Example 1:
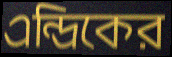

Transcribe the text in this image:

এন্দ্রিকের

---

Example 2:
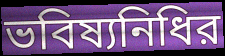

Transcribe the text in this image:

ভবিষ্যনিধির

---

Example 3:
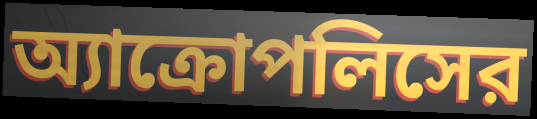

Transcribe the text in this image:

অ্যাক্রোপলিসের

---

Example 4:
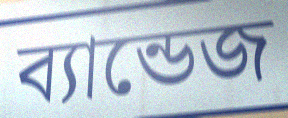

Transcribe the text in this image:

ব্যান্ডেজ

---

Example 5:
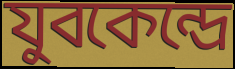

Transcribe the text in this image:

যুবকেন্দ্রে